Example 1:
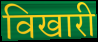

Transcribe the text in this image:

विखारी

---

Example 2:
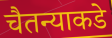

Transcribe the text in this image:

चैतन्याकडे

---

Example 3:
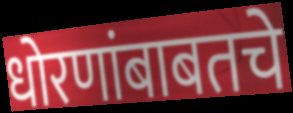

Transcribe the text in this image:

धोरणांबाबतचे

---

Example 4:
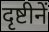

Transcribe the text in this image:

दृष्टीनें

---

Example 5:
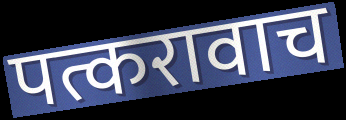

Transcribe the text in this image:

पत्करावाच